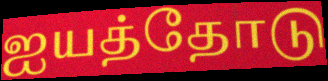
ஐயத்தோடு